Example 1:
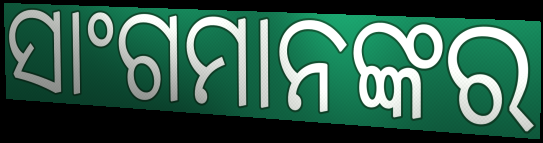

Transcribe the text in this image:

ସାଂଗମାନଙ୍କର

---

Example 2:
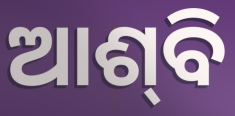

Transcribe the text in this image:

ଆଶ୍‍ବି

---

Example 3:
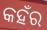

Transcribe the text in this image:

କହଁର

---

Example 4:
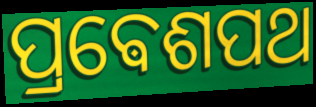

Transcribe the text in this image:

ପ୍ରଵେଶପଥ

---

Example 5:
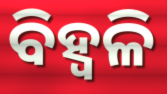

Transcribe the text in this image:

ବିହ୍ୱଳି